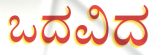
ಒದವಿದ